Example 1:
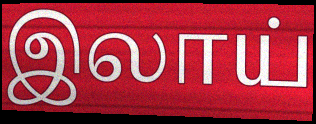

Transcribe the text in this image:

இலாய்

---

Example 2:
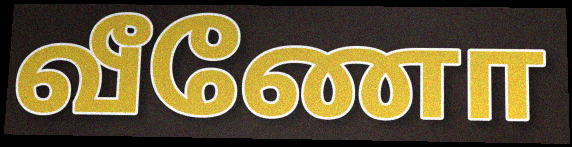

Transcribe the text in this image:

வீணோ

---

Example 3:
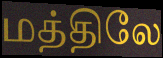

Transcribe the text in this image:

மத்திலே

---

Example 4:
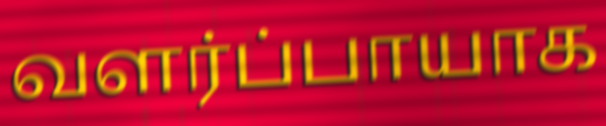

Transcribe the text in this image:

வளர்ப்பாயாக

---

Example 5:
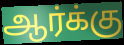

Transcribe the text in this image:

ஆர்க்கு